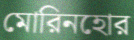
মোরিনহোর